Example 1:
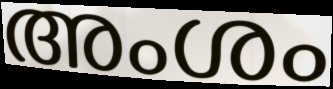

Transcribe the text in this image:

അംശം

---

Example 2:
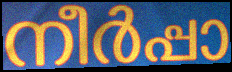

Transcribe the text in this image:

നീർപ്പാ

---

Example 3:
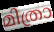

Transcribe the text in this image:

മിത്രാ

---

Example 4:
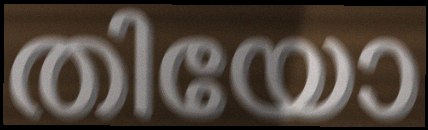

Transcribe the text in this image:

തിയോ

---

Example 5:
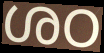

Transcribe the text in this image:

ശഠ